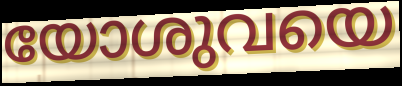
യോശുവയെ